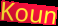
Koun